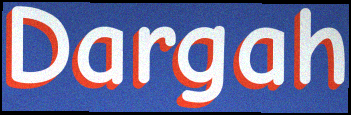
Dargah